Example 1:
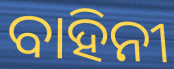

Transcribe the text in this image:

ବାହିନୀ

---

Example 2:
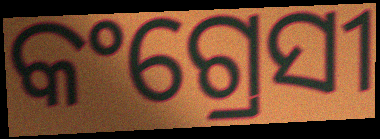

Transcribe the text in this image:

କଂଗ୍ରେସୀ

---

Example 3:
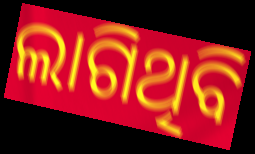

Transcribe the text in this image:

ଲାଗିଥିବି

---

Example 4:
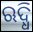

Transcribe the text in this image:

ଋଦ୍ଧି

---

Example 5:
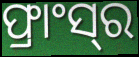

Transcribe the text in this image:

ଫ୍ରାଂସ୍‍ର